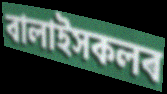
বালাইসকলৰ